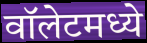
वॉलेटमध्ये